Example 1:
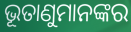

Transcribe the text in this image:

ଭୂତାଣୁମାନଙ୍କର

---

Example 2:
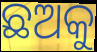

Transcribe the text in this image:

ଛଅକୁ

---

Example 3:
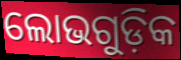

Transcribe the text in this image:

ଲୋଭଗୁଡ଼ିକ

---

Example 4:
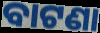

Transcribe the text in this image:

ବାଟଣା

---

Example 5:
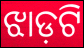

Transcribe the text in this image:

ଝାଡ଼ଟି